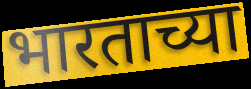
भारताच्या